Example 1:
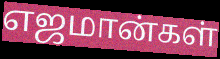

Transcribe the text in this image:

எஜமான்கள்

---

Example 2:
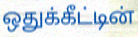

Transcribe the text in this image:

ஒதுக்கீட்டின்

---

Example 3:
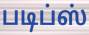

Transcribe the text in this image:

படிப்ஸ்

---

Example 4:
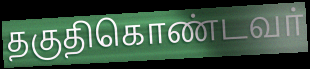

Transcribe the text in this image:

தகுதிகொண்டவர்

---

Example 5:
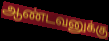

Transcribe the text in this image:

ஆண்டவனுக்கு